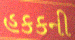
હકકની